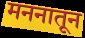
मननातून